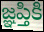
జ్ఞప్తికి